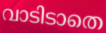
വാടിടാതെ